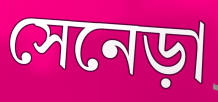
সেনেড়া